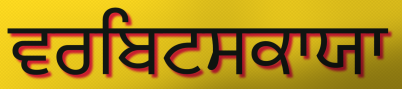
ਵਰਬਿਟਸਕਾਯਾ